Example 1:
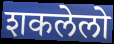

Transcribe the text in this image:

शकलेलो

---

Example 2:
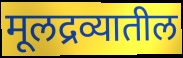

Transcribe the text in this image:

मूलद्रव्यातील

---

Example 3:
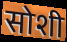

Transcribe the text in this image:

सोशी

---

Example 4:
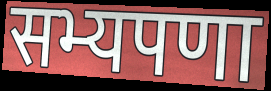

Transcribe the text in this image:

सभ्यपणा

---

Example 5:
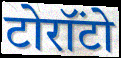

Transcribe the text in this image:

टोरॉंटो